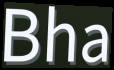
Bha